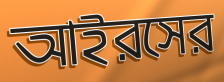
আইরসের